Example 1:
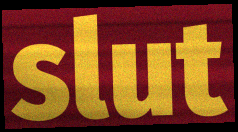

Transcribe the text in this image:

slut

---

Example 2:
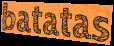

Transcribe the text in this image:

batatas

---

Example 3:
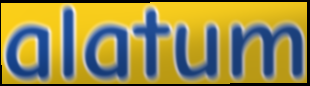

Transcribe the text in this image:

alatum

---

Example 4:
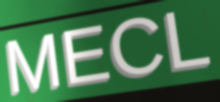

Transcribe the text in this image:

MECL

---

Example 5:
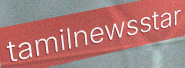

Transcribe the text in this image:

tamilnewsstar